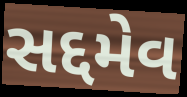
સદ્દમેવ